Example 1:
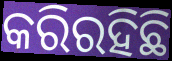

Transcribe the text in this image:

କରିରହିଛି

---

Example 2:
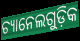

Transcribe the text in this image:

ଚ୍ୟାନେଲଗୁଡ଼ିକ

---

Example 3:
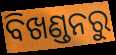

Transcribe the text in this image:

ବିଖଣ୍ଡନରୁ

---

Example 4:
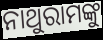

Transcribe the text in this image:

ନାଥୁରାମଙ୍କୁ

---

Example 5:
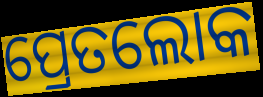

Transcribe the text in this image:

ପ୍ରେତଲୋକ